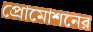
প্রোমোশনের